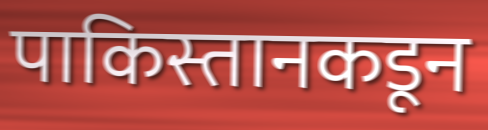
पाकिस्तानकडून